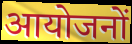
आयोजनों